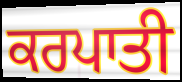
ਕਰਪਾਤੀ